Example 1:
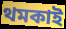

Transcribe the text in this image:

থমকাই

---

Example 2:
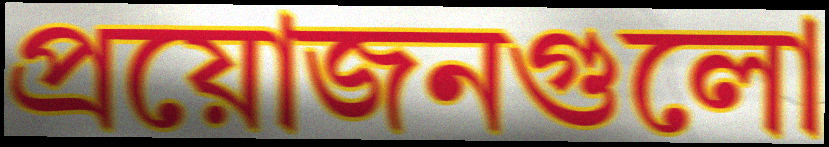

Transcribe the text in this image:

প্রয়োজনগুলো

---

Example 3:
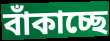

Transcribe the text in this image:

বাঁকাচ্ছে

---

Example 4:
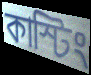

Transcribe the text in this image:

কাস্টিং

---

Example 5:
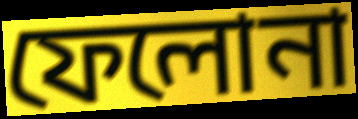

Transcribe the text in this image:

ফেলোনা